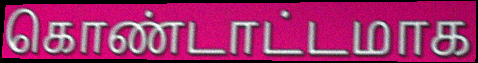
கொண்டாட்டமாக